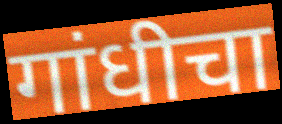
गांधीचा